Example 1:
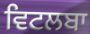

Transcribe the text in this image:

ਵਿਟਲਬਾ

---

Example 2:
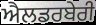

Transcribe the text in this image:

ਐਲਡਰਬੇਰੀ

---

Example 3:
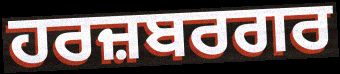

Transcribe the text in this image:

ਹਰਜ਼ਬਰਗਰ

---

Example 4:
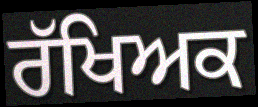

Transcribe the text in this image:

ਰੱਖਿਅਕ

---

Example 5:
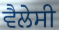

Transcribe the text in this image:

ਵੈਲੇਸੀ